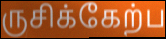
ருசிக்கேற்ப